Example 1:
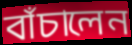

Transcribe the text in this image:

বাঁচালেন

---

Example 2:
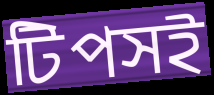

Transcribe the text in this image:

টিপসই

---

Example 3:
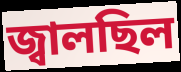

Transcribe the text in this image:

জ্বালছিল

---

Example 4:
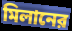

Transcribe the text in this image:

মিলানের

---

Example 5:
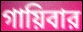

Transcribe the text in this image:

গায়িবার